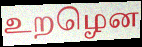
உறழென